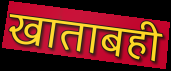
खाताबही